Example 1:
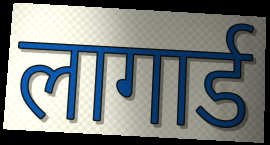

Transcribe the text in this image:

लागार्ड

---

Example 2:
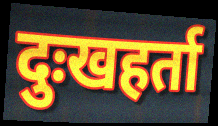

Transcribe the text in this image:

दुःखहर्ता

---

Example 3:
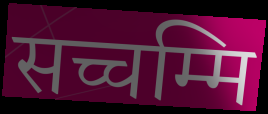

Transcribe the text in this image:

सच्चम्मि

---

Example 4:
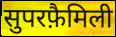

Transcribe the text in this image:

सुपरफ़ैमिली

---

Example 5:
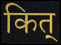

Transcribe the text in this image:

कित्